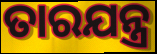
ତାରଯନ୍ତ୍ର